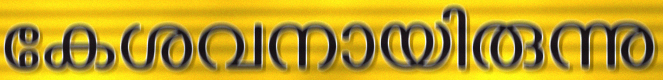
കേശവനായിരുന്നു